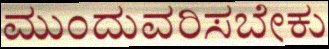
ಮುಂದುವರಿಸಬೇಕು